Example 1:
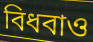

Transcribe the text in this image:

বিধবাও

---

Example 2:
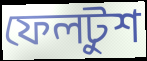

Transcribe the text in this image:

ফেলটুশ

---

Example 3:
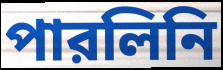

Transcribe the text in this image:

পারলিনি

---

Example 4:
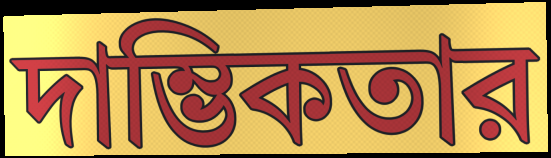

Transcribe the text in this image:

দাম্ভিকতার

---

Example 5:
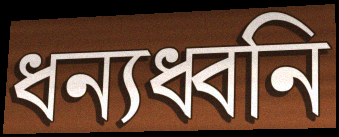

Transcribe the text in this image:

ধন্যধ্বনি